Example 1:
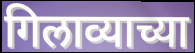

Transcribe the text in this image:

गिलाव्याच्या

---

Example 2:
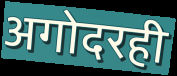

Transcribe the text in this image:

अगोदरही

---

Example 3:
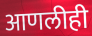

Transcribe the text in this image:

आणलीही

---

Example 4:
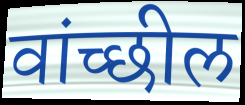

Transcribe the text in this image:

वांच्छील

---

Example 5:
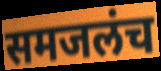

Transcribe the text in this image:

समजलंच